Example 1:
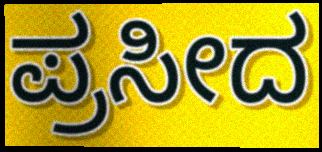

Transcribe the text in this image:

ಪ್ರಸೀದ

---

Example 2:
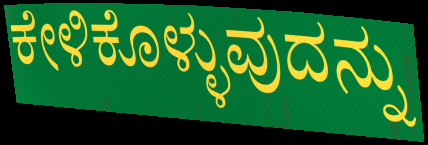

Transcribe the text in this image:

ಕೇಳಿಕೊಳ್ಳುವುದನ್ನು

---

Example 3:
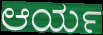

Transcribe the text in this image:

ಆರ್ಯ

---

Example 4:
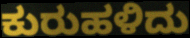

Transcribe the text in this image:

ಕುರುಹಳಿದು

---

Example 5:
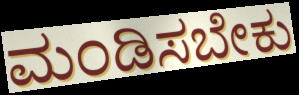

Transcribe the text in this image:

ಮಂಡಿಸಬೇಕು